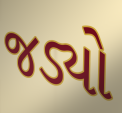
જડ્યો